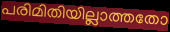
പരിമിതിയില്ലാത്തതോ